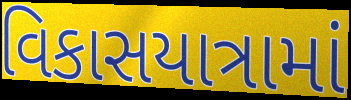
વિકાસયાત્રામાં